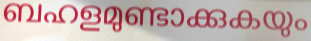
ബഹളമുണ്ടാക്കുകയും